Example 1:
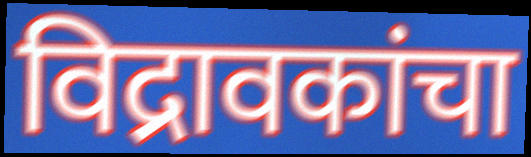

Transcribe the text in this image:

विद्रावकांचा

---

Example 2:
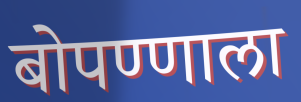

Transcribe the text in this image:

बोपण्णाला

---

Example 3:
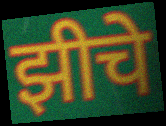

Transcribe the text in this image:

झीचे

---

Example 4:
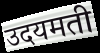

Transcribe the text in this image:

उदयमती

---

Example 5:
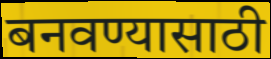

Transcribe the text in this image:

बनवण्‍यासाठी